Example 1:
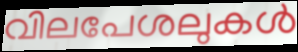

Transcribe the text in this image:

വിലപേശലുകൾ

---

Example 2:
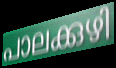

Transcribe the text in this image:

പാലക്കുഴി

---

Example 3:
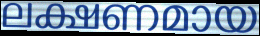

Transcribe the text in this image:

ലക്ഷണമായ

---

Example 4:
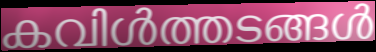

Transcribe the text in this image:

കവിൾത്തടങ്ങൾ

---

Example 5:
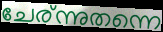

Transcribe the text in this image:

ചേര്ന്നുതന്നെ